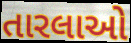
તારલાઓ